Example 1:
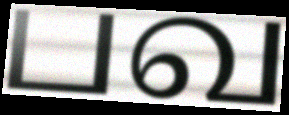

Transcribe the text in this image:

பவ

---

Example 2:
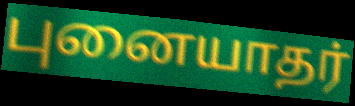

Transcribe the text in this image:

புனையாதர்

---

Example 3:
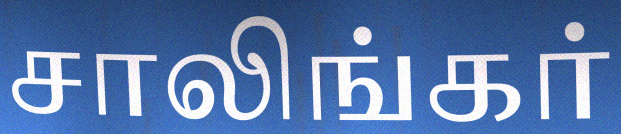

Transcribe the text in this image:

சாலிங்கர்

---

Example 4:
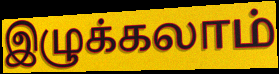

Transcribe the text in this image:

இழுக்கலாம்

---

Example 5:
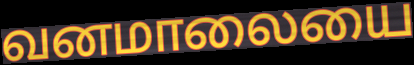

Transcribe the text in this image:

வனமாலையை